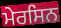
ਮੇਰਸਿਨ